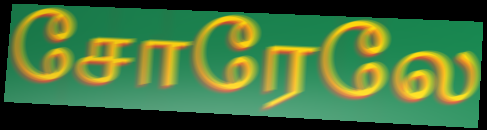
சோரேலே